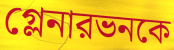
গ্লেনারভনকে